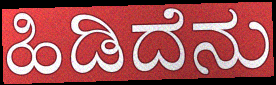
ಹಿಡಿದೆನು